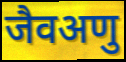
जैवअणु